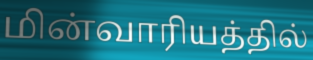
மின்வாரியத்தில்